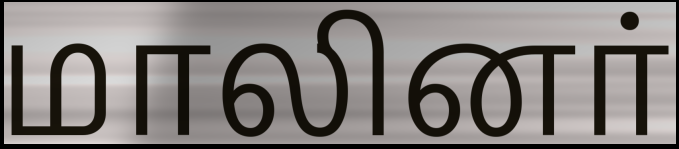
மாலினர்